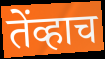
तेंव्हाच